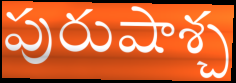
పురుషాశ్చ